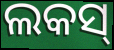
ଲକସ୍